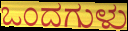
ಒಂದಗುಳು